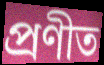
প্রণীত